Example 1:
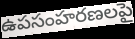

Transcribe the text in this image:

ఉపసంహరణలపై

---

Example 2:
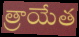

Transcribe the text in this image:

త్రాయేత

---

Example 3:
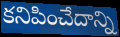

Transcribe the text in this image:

కనిపించేదాన్ని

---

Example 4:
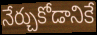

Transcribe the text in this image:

నేర్చుకోడానికే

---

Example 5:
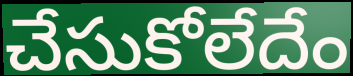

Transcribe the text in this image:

చేసుకోలేదేం